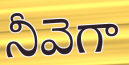
నీవెగా